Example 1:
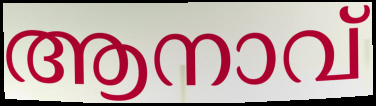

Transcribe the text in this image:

ആനാവ്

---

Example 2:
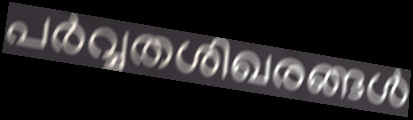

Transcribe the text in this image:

പർവ്വതശിഖരങ്ങൾ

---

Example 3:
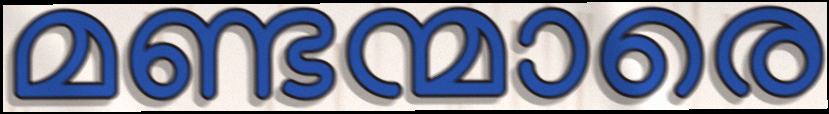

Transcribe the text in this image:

മണ്ടന്മാരെ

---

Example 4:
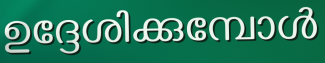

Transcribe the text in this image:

ഉദ്ദേശിക്കുമ്പോൾ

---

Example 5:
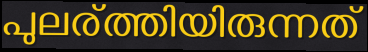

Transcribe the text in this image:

പുലര്ത്തിയിരുന്നത്